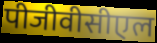
पीजीवीसीएल